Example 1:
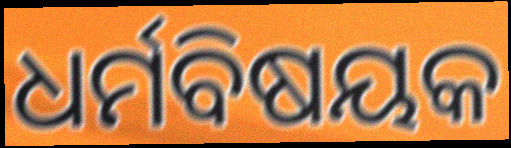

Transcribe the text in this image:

ଧର୍ମବିଷୟକ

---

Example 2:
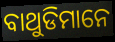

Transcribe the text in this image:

ବାଥୁଡିମାନେ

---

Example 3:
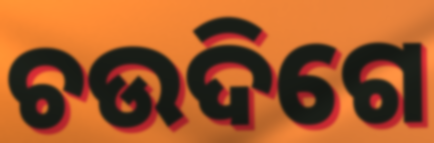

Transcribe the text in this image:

ଚଉଦିଗେ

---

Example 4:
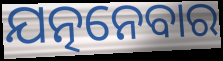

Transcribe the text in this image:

ଯତ୍ନନେବାର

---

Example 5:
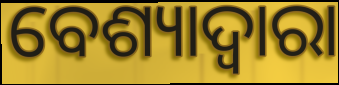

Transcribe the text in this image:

ବେଶ୍ୟାଦ୍ୱାରା